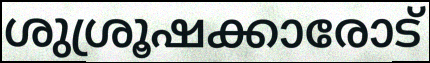
ശുശ്രൂഷക്കാരോട്